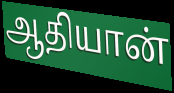
ஆதியான்